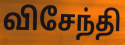
விசேந்தி